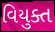
વિયુક્ત